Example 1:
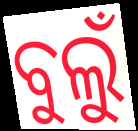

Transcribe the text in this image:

ବୁଲୁଁ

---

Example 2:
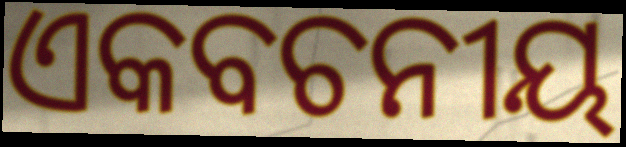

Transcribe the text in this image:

ଏକବଚନୀୟ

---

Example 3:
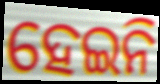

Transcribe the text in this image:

ହେଇନି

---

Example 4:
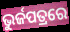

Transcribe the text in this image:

ଭୁର୍ଜପତ୍ରରେ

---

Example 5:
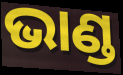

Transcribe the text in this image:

ଭାଣ୍ଡ